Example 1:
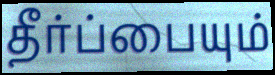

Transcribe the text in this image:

தீர்ப்பையும்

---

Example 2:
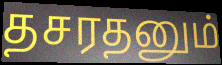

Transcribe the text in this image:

தசரதனும்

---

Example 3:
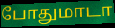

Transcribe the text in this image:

போதுமாடா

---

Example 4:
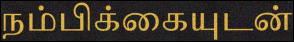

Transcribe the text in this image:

நம்பிக்கையுடன்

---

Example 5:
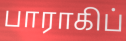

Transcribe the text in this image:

பாராகிப்